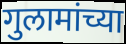
गुलामांच्या